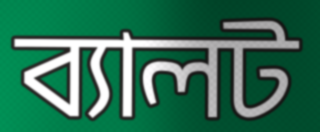
ব্যালট